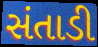
સંતાડી